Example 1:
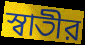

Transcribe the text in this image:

স্বাতীর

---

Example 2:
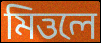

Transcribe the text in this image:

মিত্তলে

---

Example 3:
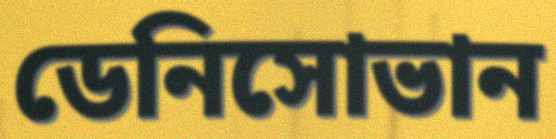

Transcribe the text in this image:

ডেনিসোভান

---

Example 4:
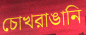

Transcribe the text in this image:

চোখরাঙানি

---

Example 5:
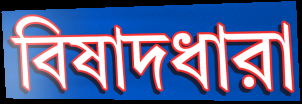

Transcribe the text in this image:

বিষাদধারা